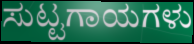
ಸುಟ್ಟಗಾಯಗಳು